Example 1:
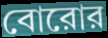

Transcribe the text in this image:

বোরোর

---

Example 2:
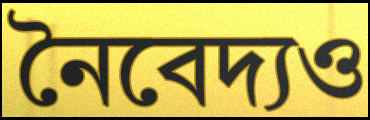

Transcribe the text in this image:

নৈবেদ্যও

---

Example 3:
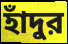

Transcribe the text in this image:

হাঁদুর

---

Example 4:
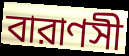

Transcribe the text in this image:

বারাণসী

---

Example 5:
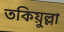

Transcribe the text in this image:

তকিয়ুল্লা